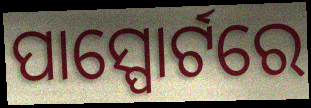
ପାସ୍ପୋର୍ଟରେ